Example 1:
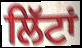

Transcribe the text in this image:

ਲਿੱਟਾਂ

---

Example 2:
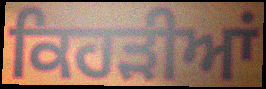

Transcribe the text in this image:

ਕਿਹੜੀਆਂ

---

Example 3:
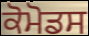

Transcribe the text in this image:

ਕੋਮੋਡਸ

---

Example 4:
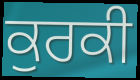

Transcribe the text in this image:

ਕੁਰਕੀ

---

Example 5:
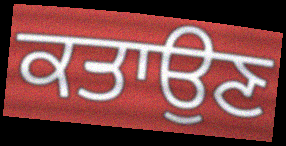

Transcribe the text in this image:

ਕਤਾਉਣ